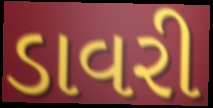
ડાવરી